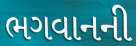
ભગવાનની